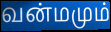
வன்மமும்